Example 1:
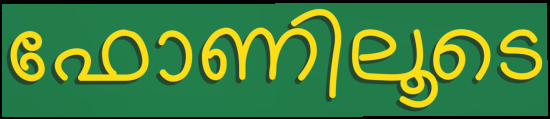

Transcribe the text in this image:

ഫോണിലൂടെ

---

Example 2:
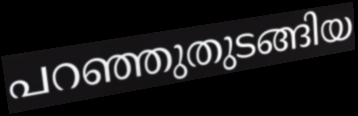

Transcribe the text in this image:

പറഞ്ഞുതുടങ്ങിയ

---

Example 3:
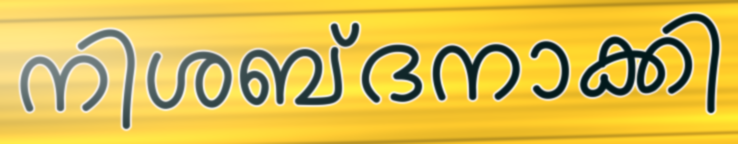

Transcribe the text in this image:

നിശബ്ദനാക്കി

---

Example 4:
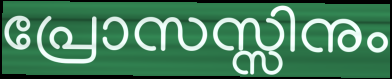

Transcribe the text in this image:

പ്രോസസ്സിനും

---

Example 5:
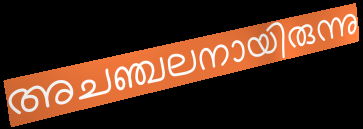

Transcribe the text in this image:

അചഞ്ചലനായിരുന്നു